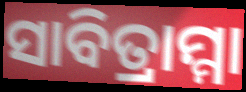
ସାବିତ୍ରାମ୍ମା